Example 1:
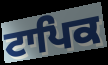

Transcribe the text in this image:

ਟਾਪਿਕ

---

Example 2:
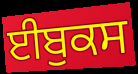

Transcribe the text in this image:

ਈਬੁਕਸ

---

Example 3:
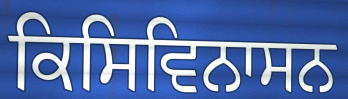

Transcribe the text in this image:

ਕਿਸਿਵਿਨਾਸਨ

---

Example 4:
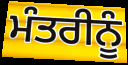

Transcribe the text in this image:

ਮੰਤਰੀਨੂੰ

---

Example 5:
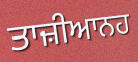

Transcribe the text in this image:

ਤਾਜ਼ੀਆਨਹ